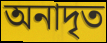
অনাদৃত